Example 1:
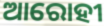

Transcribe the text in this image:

ଆରୋହୀ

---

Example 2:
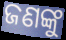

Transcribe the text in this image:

ଜଣଙ୍କୁ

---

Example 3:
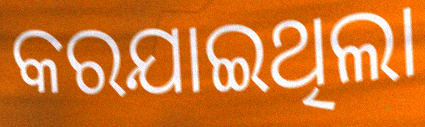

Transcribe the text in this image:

କରଯାଇଥିଲା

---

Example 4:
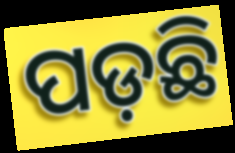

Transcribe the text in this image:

ପଡ଼ଛି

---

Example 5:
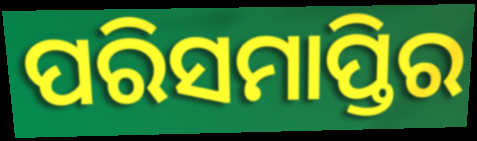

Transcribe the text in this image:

ପରିସମାପ୍ତିର